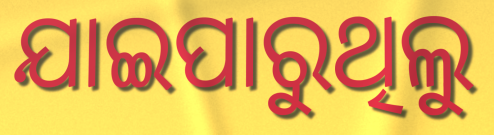
ଯାଇପାରୁଥିଲୁ